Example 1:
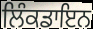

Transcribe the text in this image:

ਲਿੰਕਡਾਇਨ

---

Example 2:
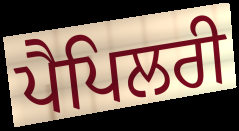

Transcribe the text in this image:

ਪੈਪਿਲਰੀ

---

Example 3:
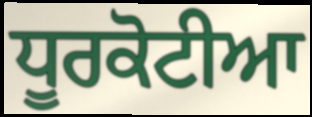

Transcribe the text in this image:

ਧੂਰਕੋਟੀਆ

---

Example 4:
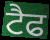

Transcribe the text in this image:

ਟੈਫ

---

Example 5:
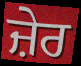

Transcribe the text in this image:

ਜ਼ੇਰ